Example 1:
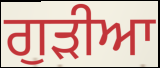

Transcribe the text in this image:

ਗੁੜੀਆ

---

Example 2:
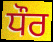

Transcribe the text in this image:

ਧੌਰ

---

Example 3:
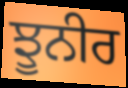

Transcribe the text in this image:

ਝੂਨੀਰ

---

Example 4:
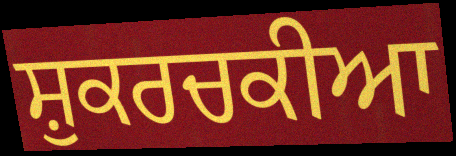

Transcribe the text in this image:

ਸ਼ੁਕਰਚਕੀਆ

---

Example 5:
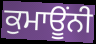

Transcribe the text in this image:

ਕੁਮਾਊਂਨੀ